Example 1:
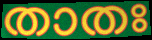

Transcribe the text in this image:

താതഃ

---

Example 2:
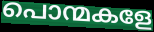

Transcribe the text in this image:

പൊന്മകളേ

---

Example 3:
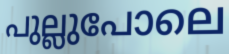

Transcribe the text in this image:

പുല്ലുപോലെ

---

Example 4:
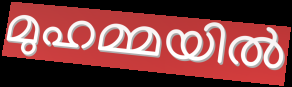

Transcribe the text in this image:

മുഹമ്മയിൽ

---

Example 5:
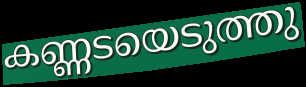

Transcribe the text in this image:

കണ്ണടയെടുത്തു